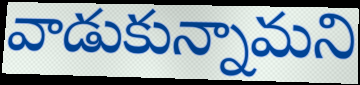
వాడుకున్నామని